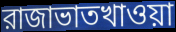
রাজাভাতখাওয়া